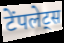
टेंपलेट्स